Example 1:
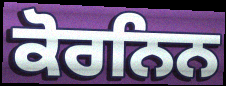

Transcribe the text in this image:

ਕੋਰਨਿਨ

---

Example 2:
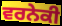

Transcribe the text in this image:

ਵਰਨੇਕੀ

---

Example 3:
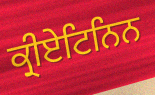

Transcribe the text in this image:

ਕ੍ਰੀਏਟਿਨਿਨ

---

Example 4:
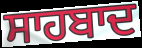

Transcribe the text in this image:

ਸਾਹਬਾਦ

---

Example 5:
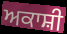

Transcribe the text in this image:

ਅਕਾਸ਼ੀ